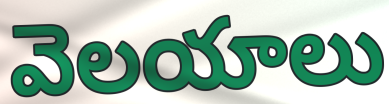
వెలయాలు